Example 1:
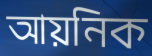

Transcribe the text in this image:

আয়নিক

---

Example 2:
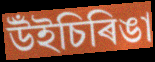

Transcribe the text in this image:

উঁইচিৰিঙা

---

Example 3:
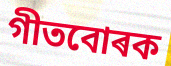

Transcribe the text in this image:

গীতবোৰক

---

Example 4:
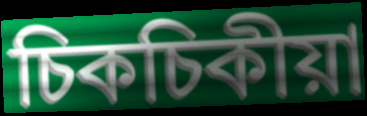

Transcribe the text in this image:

চিকচিকীয়া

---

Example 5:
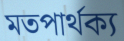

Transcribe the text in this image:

মতপাৰ্থক্য